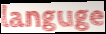
languge